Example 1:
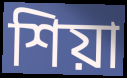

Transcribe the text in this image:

শিয়া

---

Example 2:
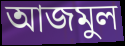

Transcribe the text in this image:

আজমুল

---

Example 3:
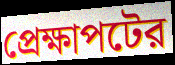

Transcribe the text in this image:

প্রেক্ষাপটের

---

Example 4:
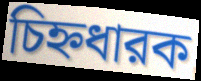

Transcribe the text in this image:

চিহ্নধারক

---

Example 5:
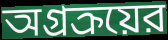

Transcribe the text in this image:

অগ্রক্রয়ের